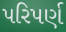
પરિપર્ણ